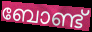
ബോണ്ട്